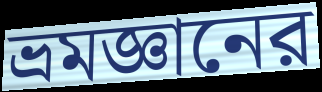
ভ্রমজ্ঞানের